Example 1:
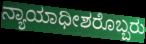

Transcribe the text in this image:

ನ್ಯಾಯಾಧೀಶರೊಬ್ಬರು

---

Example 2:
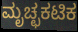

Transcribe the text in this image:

ಮೃಚ್ಛಕಟಿಕ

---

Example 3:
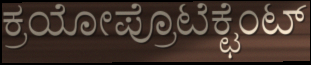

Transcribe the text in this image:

ಕ್ರಯೋಪ್ರೊಟೆಕ್ಟೆಂಟ್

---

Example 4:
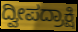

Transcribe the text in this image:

ದ್ವೀಪದ್ರಾಕ್ಷಿ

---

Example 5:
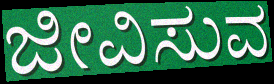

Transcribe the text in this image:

ಜೀವಿಸುವ